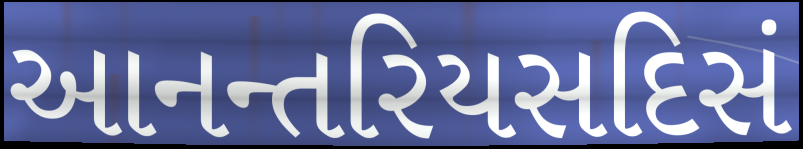
આનન્તરિયસદિસં